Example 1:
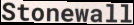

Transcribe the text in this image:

Stonewall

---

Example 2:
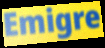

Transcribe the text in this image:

Emigre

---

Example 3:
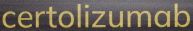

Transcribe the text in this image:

certolizumab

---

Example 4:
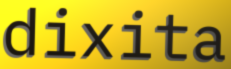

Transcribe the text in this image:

dixita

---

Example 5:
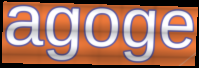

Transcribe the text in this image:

agoge